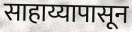
साहाय्यापासून